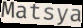
Matsya